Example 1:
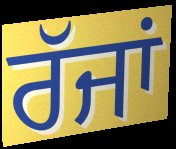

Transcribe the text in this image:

ਰੱਜਾਂ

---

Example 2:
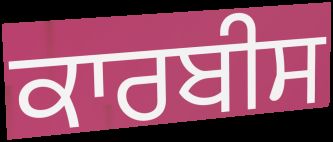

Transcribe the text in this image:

ਕਾਰਬੀਸ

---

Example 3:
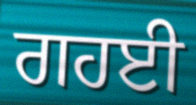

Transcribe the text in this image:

ਗਹਈ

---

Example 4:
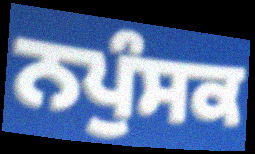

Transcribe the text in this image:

ਨਪੁੰਸਕ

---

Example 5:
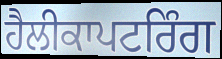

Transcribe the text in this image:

ਹੈਲੀਕਾਪਟਰਿੰਗ